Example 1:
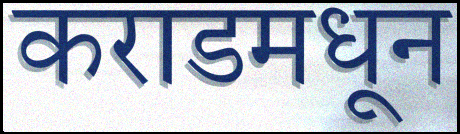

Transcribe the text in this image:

कराडमधून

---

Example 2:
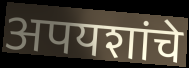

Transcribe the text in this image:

अपयशांचे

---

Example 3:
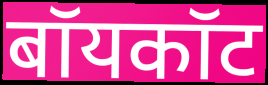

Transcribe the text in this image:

बॉयकॉट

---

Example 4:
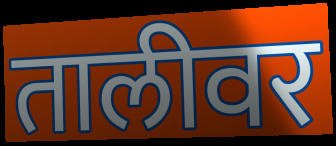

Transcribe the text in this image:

तालीवर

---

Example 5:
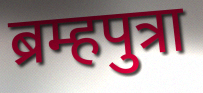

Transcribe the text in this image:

ब्रम्हपुत्रा